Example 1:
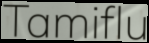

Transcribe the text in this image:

Tamiflu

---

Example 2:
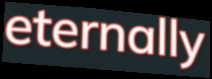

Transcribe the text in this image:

eternally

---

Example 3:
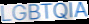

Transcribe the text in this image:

LGBTQIA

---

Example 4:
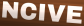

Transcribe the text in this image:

NCIVE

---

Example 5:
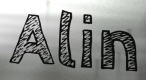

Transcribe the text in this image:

Alin